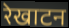
रेखाटन